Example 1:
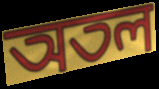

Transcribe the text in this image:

অতল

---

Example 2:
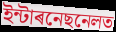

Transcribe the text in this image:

ইন্টাৰনেছনেলত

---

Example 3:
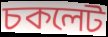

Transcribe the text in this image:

চকলেট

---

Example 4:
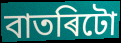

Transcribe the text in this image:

বাতৰিটো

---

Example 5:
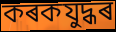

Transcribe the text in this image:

কৰকযুদ্ধৰ